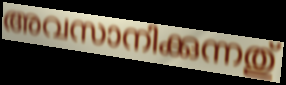
അവസാനിക്കുന്നതു്